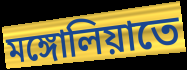
মঙ্গোলিয়াতে